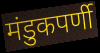
मंडुकपर्णी